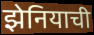
झेनियाची